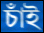
চাঁই